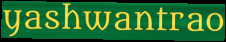
yashwantrao